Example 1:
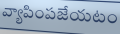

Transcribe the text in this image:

వ్యాపింపజేయటం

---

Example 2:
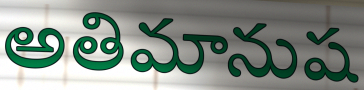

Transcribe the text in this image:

అతిమానుష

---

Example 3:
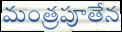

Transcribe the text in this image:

మంత్రపూతేన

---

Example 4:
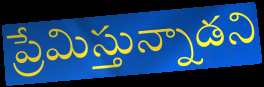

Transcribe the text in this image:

ప్రేమిస్తున్నాడని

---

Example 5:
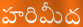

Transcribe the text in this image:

హరిమీద